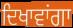
ਦਿਖਾਵਾਂਗਾ